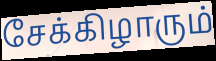
சேக்கிழாரும்